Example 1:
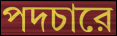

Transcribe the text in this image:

পদচারে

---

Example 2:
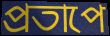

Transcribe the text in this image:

প্রতাপে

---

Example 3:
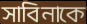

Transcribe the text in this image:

সাবিনাকে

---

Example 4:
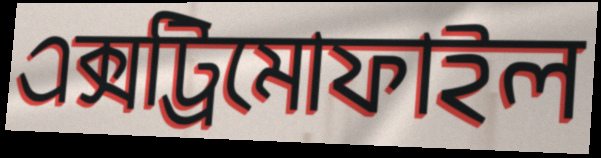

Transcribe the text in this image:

এক্সট্রিমোফাইল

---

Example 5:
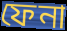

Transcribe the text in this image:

ফেনা